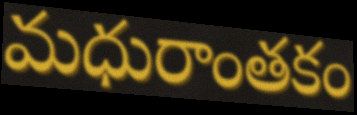
మధురాంతకం